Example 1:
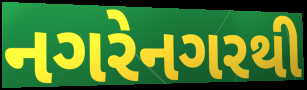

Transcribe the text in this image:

નગરેનગરથી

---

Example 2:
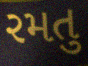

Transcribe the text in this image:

રમતુ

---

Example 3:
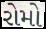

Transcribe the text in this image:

રોમો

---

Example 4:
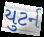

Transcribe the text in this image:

યુટર્ન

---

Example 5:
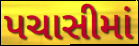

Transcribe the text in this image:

પચાસીમાં